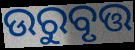
ଉରୁବୃତ୍ତ